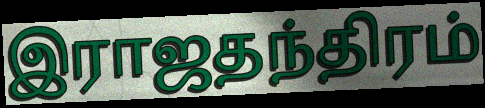
இராஜதந்திரம்